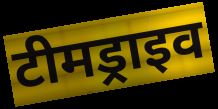
टीमड्राइव